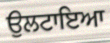
ਉਲਟਾਇਆ